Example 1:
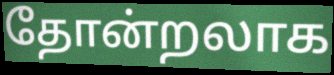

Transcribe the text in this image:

தோன்றலாக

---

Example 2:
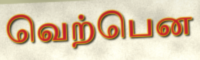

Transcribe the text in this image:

வெற்பென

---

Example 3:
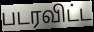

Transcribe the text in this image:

படரவிட்ட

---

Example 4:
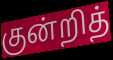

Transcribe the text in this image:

குன்றித்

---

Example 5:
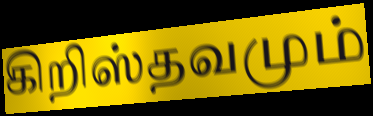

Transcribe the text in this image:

கிறிஸ்தவமும்